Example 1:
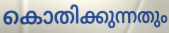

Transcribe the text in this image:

കൊതിക്കുന്നതും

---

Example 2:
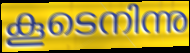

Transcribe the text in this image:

കൂടെനിന്നു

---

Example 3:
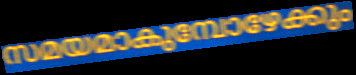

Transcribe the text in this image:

സമയമാകുമ്പോഴേക്കും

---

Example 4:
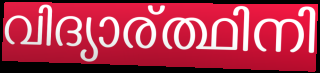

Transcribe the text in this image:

വിദ്യാര്ത്ഥിനി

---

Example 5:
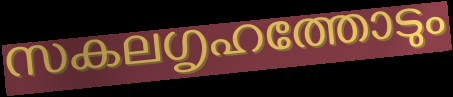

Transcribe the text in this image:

സകലഗൃഹത്തോടും